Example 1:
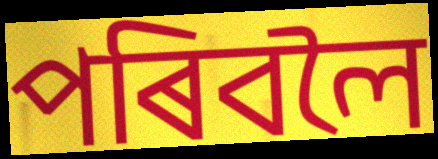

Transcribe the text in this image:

পৰিবলৈ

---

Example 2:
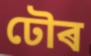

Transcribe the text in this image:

ঢৌৰ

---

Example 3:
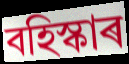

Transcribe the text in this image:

বহিস্কাৰ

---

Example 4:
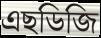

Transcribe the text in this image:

এছডিজি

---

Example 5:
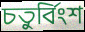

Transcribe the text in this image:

চতুৰ্বিংশ